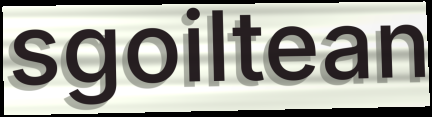
sgoiltean